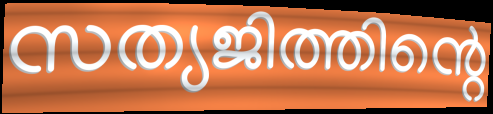
സത്യജിത്തിന്റെ